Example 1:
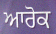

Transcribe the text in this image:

ਆਰੋਕ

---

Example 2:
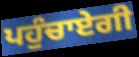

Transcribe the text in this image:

ਪਹੁੰਚਾਏਗੀ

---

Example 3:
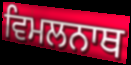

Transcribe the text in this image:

ਵਿਮਲਨਾਥ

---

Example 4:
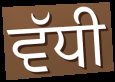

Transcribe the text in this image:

ਵੱਧੀ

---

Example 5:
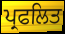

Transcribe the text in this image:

ਪ੍ਰਫਲਿਤ